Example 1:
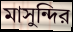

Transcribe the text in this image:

মাসুন্দির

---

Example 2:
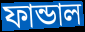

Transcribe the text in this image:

ফান্ডাল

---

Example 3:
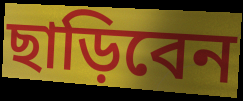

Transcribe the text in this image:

ছাড়িবেন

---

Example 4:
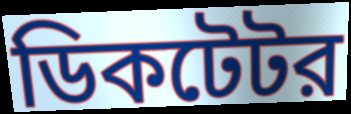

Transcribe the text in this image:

ডিকটেটর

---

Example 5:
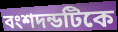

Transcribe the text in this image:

বংশদন্ডটিকে